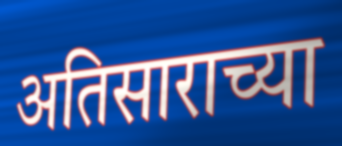
अतिसाराच्या